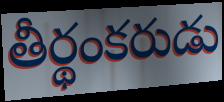
తీర్థంకరుడు